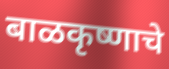
बाळकृष्णाचे